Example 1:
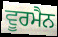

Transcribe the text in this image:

ਵੂਰਮੈਨ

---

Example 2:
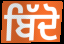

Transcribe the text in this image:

ਬਿੱਦੋ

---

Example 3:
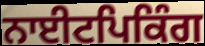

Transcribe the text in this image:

ਨਾਈਟਪਿਕਿੰਗ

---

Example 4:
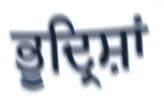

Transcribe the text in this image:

ਭੂਦ੍ਰਿਸ਼ਾਂ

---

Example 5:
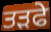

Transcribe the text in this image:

ਤੜਫੇ